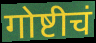
गोष्टीचं